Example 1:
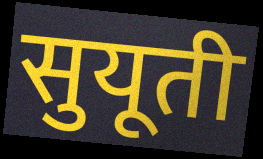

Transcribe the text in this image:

सुयूती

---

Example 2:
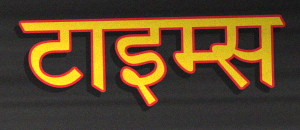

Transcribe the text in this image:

टाइम्‍स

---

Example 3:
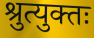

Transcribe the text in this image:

श्रुत्युक्तः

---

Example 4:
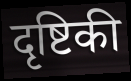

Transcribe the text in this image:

दृष्टिकी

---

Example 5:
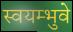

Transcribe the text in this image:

स्वयम्भुवे